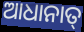
ଆଧାନାତ୍